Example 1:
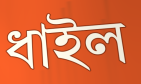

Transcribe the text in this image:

ধাইল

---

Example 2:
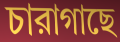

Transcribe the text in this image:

চারাগাছে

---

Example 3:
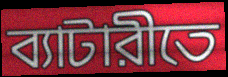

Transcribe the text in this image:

ব্যাটারীতে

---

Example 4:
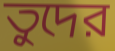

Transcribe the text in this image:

তুদের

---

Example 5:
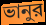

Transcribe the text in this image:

ভানুর